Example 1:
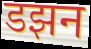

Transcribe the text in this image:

डझन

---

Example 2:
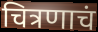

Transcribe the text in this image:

चित्रणाचं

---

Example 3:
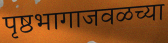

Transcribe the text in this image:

पृष्ठभागाजवळच्या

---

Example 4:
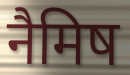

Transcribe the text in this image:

नैमिष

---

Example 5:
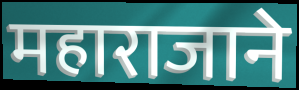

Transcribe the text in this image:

महाराजाने